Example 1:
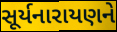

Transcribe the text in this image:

સૂર્યનારાયણને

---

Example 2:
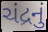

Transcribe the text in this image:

ચંદ્રનું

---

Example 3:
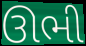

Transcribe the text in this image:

ઊભી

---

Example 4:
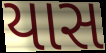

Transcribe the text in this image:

યાસ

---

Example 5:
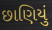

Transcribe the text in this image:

છાણિયું